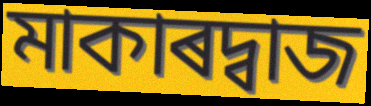
মাকাৰদ্বাজ